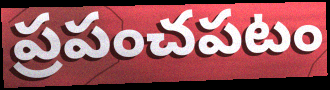
ప్రపంచపటం